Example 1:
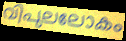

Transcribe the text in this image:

വിപുലലോകം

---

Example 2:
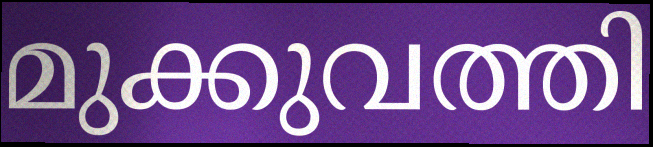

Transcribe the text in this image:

മുക്കുവത്തി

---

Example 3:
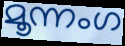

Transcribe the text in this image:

മൂന്നംഗ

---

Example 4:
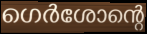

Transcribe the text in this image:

ഗെർശോന്റെ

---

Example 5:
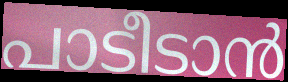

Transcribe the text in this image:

പാടീടാൻ